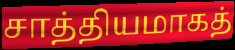
சாத்தியமாகத்